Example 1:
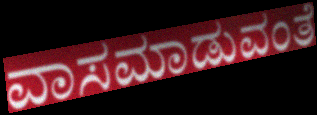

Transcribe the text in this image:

ವಾಸಮಾಡುವಂತೆ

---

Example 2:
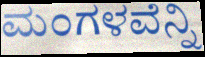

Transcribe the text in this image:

ಮಂಗಳವೆನ್ನಿ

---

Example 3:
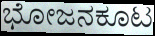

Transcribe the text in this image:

ಭೋಜನಕೂಟ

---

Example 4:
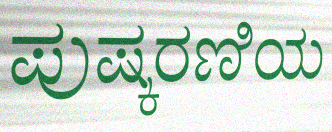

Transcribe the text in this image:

ಪುಷ್ಕರಣಿಯ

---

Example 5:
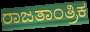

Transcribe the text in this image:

ರಾಜತಾಂತ್ರಿಕ